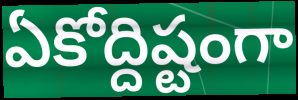
ఏకోద్దిష్టంగా